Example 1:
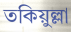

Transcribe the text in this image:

তকিয়ুল্লা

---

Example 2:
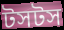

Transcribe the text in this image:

টসটস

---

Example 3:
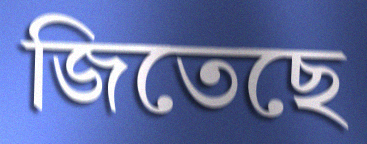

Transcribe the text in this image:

জিতেছে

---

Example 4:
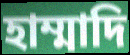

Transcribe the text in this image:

হাম্মাদি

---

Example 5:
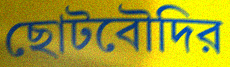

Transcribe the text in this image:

ছোটবৌদির